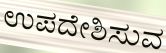
ಉಪದೇಶಿಸುವ